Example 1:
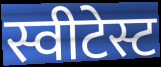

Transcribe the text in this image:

स्वीटेस्ट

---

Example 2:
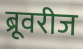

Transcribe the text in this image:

ब्रूवरीज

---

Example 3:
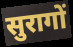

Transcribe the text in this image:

सुरागों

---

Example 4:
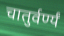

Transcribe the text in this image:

चातुर्वर्ण्यं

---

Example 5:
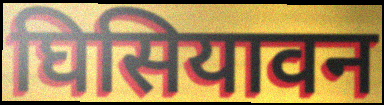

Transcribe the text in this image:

घिसियावन